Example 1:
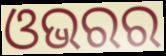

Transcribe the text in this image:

ଓଭରର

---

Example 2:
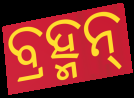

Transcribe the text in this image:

ବ୍ରହ୍ମନ୍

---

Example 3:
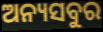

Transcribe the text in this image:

ଅନ୍ୟସବୁର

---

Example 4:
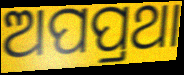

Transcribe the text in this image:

ଅପପ୍ରଥା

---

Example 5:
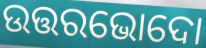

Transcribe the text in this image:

ଉତ୍ତରଭୋଦୋ